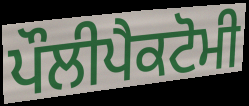
ਪੌਲੀਪੈਕਟੋਮੀ